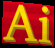
Ai